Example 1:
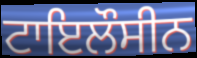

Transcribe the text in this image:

ਟਾਇਲੌਸੀਨ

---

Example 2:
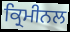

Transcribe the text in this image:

ਕ੍ਰਿਮੀਨਲ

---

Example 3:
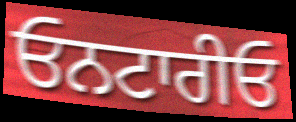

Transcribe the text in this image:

ਓਨਟਾਰੀਓ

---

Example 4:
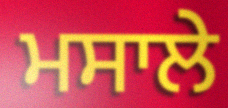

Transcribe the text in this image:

ਮਸਾਲੇ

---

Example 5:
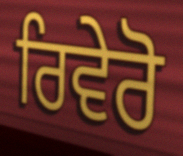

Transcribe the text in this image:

ਰਿਵੇਰੋ